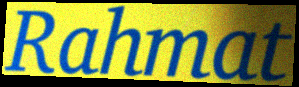
Rahmat